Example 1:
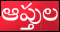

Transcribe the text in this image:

ఆప్తుల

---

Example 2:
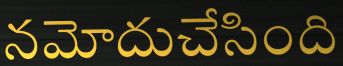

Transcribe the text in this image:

నమోదుచేసింది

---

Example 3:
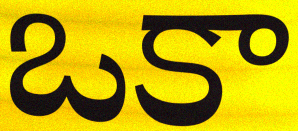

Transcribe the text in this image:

ఒకా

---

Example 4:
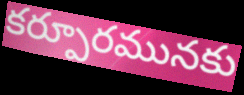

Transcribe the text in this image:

కర్పూరమునకు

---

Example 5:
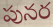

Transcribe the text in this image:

పునర